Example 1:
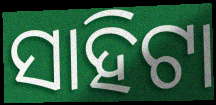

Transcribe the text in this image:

ସାହିଟା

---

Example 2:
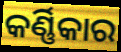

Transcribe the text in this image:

କର୍ଣ୍ଣିକାର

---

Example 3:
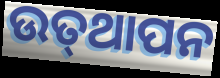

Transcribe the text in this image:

ଉତ୍‌ଥାପନ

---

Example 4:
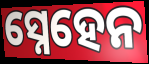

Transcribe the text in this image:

ସ୍ନେହେନ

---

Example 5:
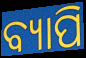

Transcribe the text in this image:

ବ୍ୟାପି